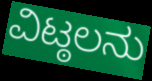
ವಿಟ್ಠಲನು